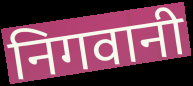
निगवानी